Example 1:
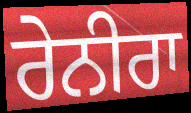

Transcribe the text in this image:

ਰੇਨੀਰਾ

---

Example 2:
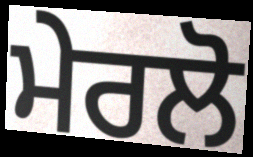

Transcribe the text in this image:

ਮੇਰਲੋ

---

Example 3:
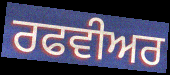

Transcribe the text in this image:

ਰਫਵੀਅਰ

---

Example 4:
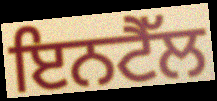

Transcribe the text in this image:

ਇਨਟੈੱਲ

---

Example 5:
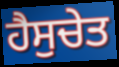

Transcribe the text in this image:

ਹੈਸੁਚੇਤ